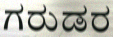
ಗರುಡರ